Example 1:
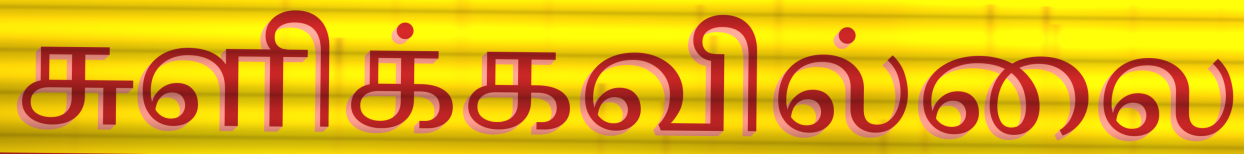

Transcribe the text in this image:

சுளிக்கவில்லை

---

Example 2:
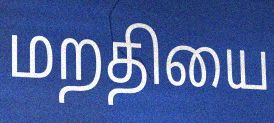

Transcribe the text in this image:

மறதியை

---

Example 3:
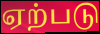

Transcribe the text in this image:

ஏற்படு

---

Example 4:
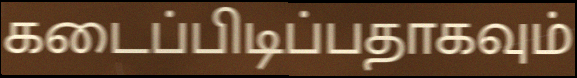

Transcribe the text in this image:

கடைப்பிடிப்பதாகவும்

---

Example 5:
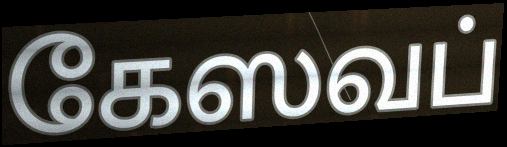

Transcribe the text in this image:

கேஸவப்